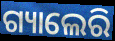
ଗ୍ୟାଲେରି